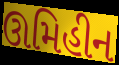
ઊમિહીન